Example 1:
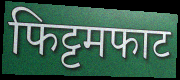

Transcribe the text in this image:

फिट्टमफाट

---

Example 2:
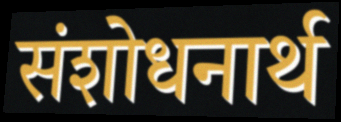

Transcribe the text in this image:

संशोधनार्थ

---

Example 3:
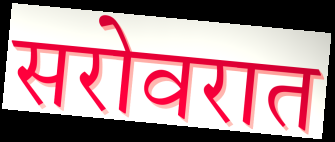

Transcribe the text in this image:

सरोवरात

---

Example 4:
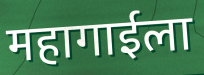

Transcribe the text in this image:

महागाईला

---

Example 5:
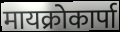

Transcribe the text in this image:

मायक्रोकार्पा